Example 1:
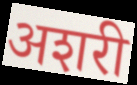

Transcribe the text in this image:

अशरी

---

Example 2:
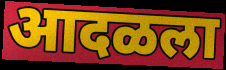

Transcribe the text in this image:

आदळला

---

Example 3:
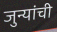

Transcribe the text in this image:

जुन्यांची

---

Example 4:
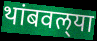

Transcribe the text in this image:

थांबवल्या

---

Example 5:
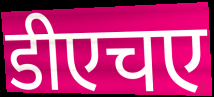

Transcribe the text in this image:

डीएचए